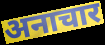
अनाचार